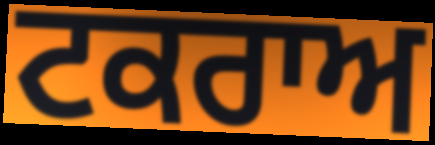
ਟਕਰਾਅ